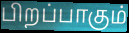
பிறப்பாகும்